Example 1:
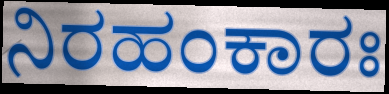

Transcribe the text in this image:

ನಿರಹಂಕಾರಃ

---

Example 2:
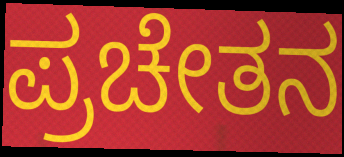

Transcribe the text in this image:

ಪ್ರಚೇತನ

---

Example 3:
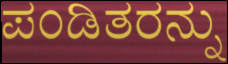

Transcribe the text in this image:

ಪಂಡಿತರನ್ನು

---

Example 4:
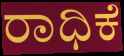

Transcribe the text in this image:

ರಾಧಿಕೆ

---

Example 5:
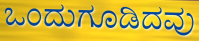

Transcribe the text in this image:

ಒಂದುಗೂಡಿದವು